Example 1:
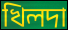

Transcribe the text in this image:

খিলদা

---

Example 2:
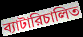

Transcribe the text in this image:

ব্যাটারিচালিত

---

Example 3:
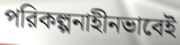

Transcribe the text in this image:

পরিকল্পনাহীনভাবেই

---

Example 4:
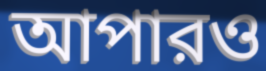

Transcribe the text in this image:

আপারও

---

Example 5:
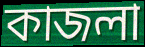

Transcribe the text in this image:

কাজলা